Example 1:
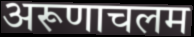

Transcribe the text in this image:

अरूणाचलम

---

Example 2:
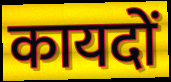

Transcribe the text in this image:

कायदों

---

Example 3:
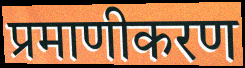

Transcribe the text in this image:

प्रमाणीकरण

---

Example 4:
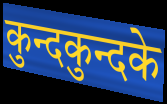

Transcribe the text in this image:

कुन्दकुन्दके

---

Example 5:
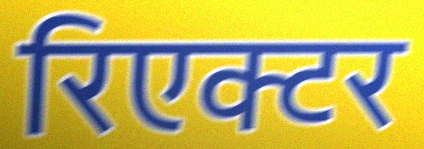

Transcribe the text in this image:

रिएक्टर